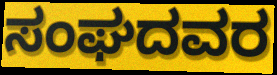
ಸಂಘದವರ